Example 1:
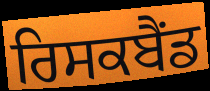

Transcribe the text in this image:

ਰਿਸਕਬੈਂਡ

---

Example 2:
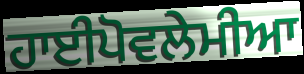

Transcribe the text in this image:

ਹਾਈਪੋਵਲੇਮੀਆ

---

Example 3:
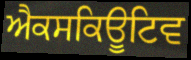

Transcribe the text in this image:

ਐਕਸਕਿਊਟਿਵ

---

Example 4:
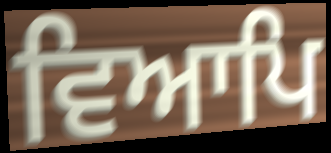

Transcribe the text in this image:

ਵਿਆਪਿ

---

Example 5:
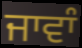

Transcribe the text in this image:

ਜਾਵਾੰ